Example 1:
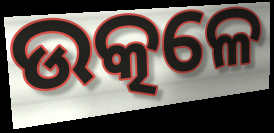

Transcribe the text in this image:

ଉତ୍କଳେ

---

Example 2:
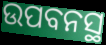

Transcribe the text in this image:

ଉପବନସ୍ଥ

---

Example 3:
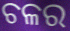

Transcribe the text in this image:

ଚଳର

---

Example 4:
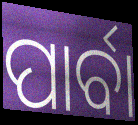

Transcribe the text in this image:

ପାର୍ବା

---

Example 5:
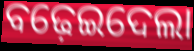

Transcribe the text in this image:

ବଢ଼େଇଦେଲା